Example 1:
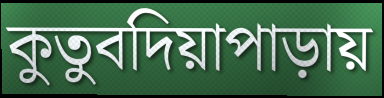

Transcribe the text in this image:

কুতুবদিয়াপাড়ায়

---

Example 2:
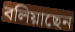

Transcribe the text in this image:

বলিয়াছেন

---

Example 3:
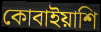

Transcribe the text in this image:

কোবাইয়াশি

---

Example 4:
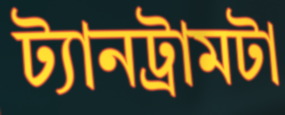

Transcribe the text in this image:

ট্যানট্রামটা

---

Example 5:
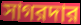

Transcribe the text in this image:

সাগরদার